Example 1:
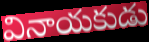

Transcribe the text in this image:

వినాయకుడు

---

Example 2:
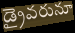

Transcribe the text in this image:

డ్రైవరునూ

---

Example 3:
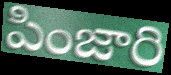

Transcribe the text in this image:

పింజారి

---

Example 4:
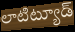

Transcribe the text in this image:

లాటిట్యూడ్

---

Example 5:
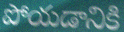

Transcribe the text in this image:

పోయడానికి